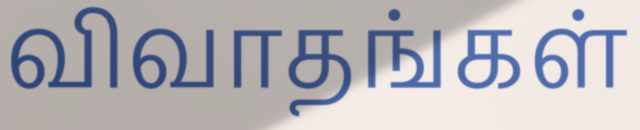
விவாதங்கள்